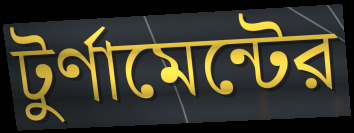
টুর্ণামেন্টের